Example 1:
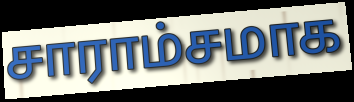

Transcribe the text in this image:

சாராம்சமாக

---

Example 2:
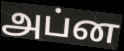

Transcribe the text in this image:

அப்ன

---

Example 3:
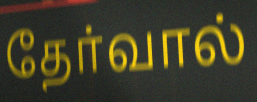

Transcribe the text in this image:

தேர்வால்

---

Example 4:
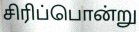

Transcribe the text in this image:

சிரிப்பொன்று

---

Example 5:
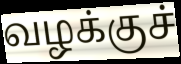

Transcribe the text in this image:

வழக்குச்